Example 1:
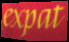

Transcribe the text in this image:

expat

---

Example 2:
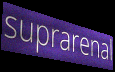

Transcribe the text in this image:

suprarenal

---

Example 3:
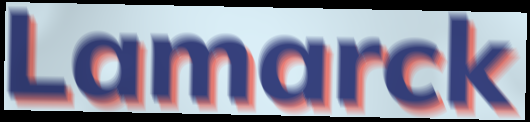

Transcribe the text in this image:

Lamarck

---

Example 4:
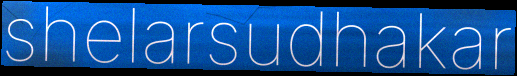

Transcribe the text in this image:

shelarsudhakar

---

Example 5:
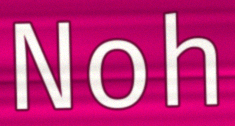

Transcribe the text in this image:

Noh